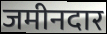
जमीनदार